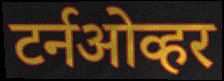
टर्नओव्हर